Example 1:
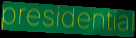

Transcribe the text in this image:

presidential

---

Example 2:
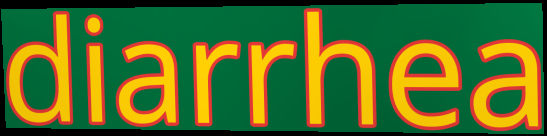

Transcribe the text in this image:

diarrhea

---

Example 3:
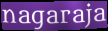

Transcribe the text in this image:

nagaraja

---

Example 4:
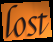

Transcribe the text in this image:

lost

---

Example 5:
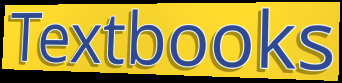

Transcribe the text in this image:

Textbooks